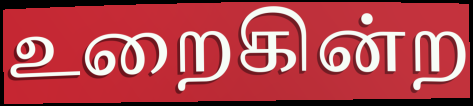
உறைகின்ற